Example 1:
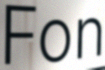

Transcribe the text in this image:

Fon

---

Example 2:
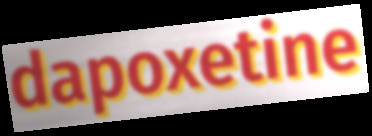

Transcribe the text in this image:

dapoxetine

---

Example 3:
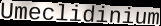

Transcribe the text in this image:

Umeclidinium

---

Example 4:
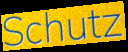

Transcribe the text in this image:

Schutz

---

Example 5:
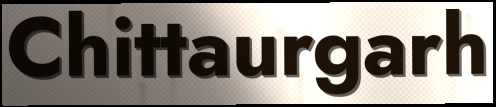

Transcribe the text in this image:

Chittaurgarh